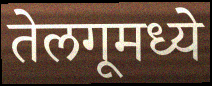
तेलगूमध्ये